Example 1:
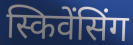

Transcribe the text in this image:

स्किवेंसिंग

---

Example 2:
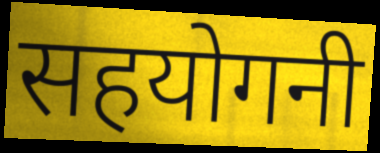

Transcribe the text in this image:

सहयोगनी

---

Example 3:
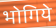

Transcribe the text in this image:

भोगिये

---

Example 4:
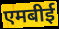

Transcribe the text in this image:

एमबीई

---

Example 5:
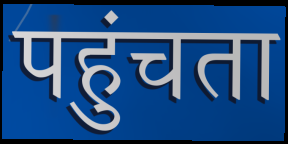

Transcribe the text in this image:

पहुंचता